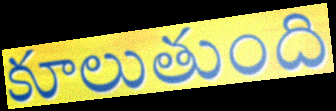
కూలుతుంది